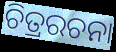
ଚିତ୍ରରଚନା